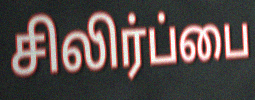
சிலிர்ப்பை